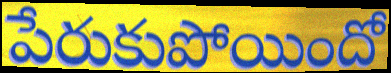
పేరుకుపోయిందో